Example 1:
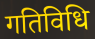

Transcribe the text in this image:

गतिविधि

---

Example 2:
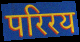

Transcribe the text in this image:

परिरय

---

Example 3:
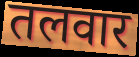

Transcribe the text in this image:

तलवार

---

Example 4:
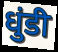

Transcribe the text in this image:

धुंडी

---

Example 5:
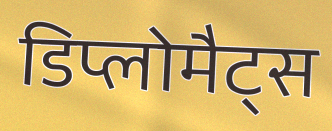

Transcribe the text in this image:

डिप्लोमैट्स